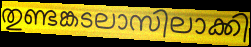
തുണ്ടങ്കടലാസിലാക്കി